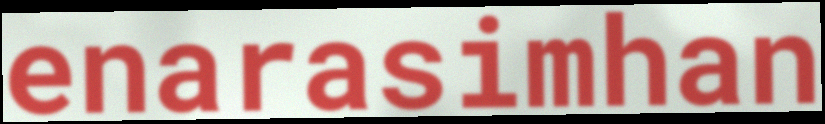
enarasimhan